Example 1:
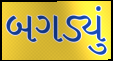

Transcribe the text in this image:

બગડ્યું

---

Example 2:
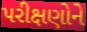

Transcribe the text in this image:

પરીક્ષણોને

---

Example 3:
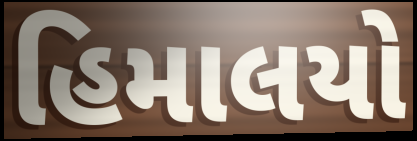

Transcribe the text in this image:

હિમાલયો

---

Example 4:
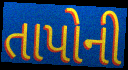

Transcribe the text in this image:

તાપોની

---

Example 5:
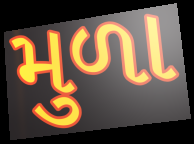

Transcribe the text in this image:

મુળા